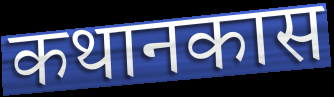
कथानकास